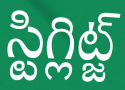
స్టిగ్లిట్జ్